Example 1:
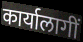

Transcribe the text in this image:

कार्यालागीं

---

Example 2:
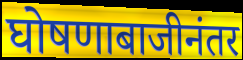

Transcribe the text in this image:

घोषणाबाजीनंतर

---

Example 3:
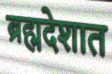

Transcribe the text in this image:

ब्रह्मदेशात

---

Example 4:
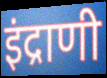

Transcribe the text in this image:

इंद्राणी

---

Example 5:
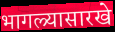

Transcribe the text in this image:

भागल्यासारखे